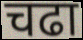
चढा